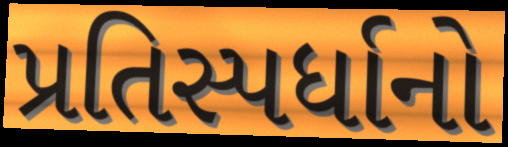
પ્રતિસ્પર્ધાનો